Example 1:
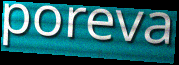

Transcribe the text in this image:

poreva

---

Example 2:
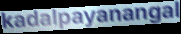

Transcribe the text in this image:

kadalpayanangal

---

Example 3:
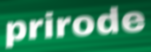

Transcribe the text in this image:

prirode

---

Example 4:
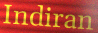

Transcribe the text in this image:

Indiran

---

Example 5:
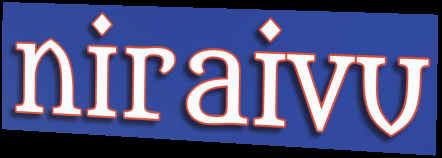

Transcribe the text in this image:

niraivu